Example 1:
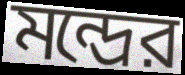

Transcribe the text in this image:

মন্দ্রের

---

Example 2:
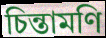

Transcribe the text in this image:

চিন্তামণি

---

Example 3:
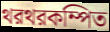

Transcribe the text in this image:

থরথরকম্পিত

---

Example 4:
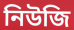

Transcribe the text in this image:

নিউজি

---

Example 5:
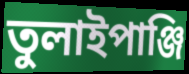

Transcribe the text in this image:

তুলাইপাঞ্জি